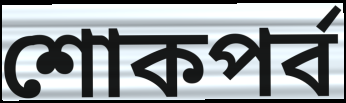
শোকপর্ব